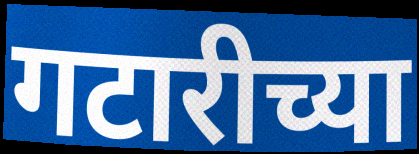
गटारीच्या